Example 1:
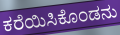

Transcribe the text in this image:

ಕರೆಯಿಸಿಕೊಂಡನು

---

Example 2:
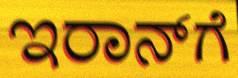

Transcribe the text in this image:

ಇರಾನ್‌ಗೆ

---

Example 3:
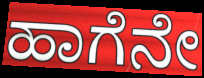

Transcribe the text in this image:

ಹಾಗೆನೇ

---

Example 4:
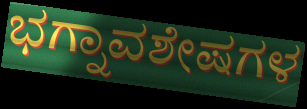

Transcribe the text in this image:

ಭಗ್ನಾವಶೇಷಗಳ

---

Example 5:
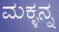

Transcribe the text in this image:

ಮಕ್ಳನ್ನ